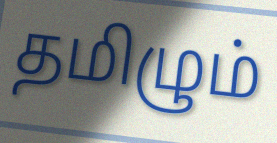
தமிழும்